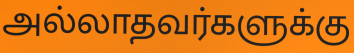
அல்லாதவர்களுக்கு